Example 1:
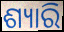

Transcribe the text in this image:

ଶ୍ୟାରି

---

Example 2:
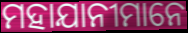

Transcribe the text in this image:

ମହାଯାନୀମାନେ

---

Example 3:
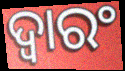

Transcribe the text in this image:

ଦ୍ୱାରଂ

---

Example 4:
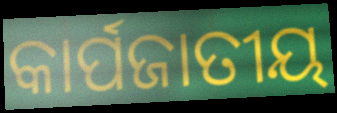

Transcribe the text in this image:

କାର୍ପଜାତୀୟ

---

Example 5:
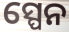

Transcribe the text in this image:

ସ୍ପେନ